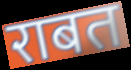
राबत